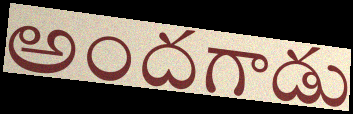
అందగాడు